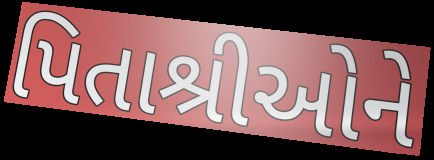
પિતાશ્રીઓને